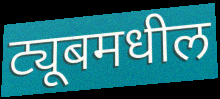
ट्यूबमधील